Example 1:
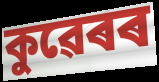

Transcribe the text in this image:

কুৱেৰৰ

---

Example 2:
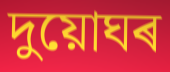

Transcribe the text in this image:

দুয়োঘৰ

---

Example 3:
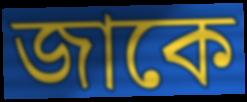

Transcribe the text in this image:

জাকে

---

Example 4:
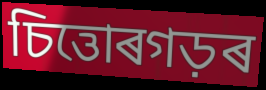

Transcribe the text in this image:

চিত্তোৰগড়ৰ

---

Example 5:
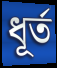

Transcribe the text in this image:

ধূৰ্ত